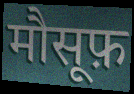
मौसूफ़